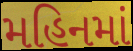
મહિનમાં